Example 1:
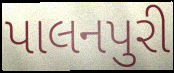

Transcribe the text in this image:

પાલનપુરી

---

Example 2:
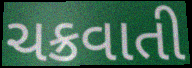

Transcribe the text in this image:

ચક્રવાતી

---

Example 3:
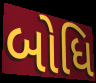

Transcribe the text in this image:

બોધિ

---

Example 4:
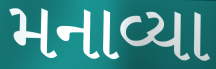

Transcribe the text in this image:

મનાવ્યા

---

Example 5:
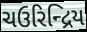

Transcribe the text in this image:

ચઉરિન્દ્રિય